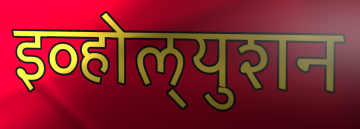
इव्होल्युशन